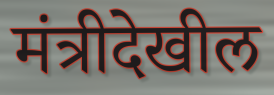
मंत्रीदेखील